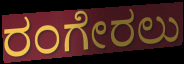
ರಂಗೇರಲು